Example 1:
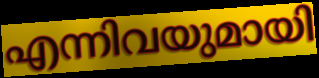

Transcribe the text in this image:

എന്നിവയുമായി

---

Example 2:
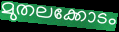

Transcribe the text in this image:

മുതലക്കോടം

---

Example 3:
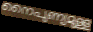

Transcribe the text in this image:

നൈപുണ്യമുള്ള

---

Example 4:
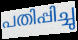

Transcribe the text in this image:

പതിപ്പിച്ചു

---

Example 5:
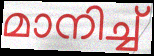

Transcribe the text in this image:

മാനിച്ച്